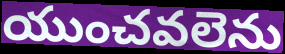
యుంచవలెను